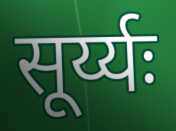
सूर्य्यः